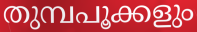
തുമ്പപൂക്കളും